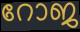
റോജ